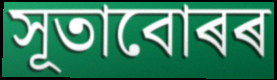
সূতাবোৰৰ